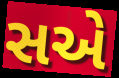
સએ